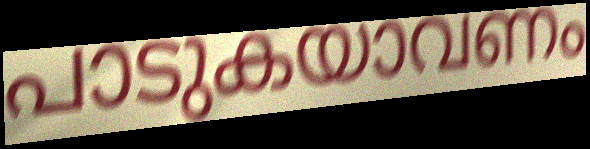
പാടുകയാവണം